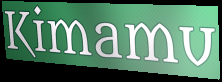
Kimamu